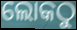
ଲୋକଠୁ